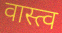
वास्त्व